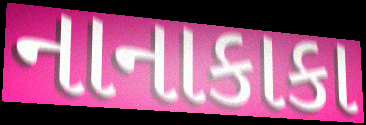
નાનાકાકા